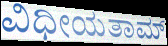
ವಿಧೀಯತಾಮ್